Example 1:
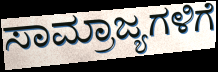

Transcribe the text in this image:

ಸಾಮ್ರಾಜ್ಯಗಳಿಗೆ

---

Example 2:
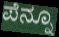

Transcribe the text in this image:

ಪೆನ್ನೂ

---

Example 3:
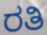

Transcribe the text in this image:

ರತಿ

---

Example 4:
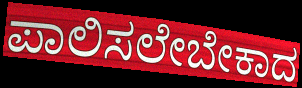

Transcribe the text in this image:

ಪಾಲಿಸಲೇಬೇಕಾದ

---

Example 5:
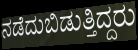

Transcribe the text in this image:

ನಡೆದುಬಿಡುತ್ತಿದ್ದರು